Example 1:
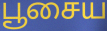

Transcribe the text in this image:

பூசைய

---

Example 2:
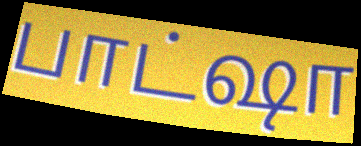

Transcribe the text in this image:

பாட்ஷா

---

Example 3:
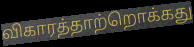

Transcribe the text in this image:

விகாரத்தாற்றொக்கது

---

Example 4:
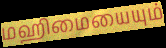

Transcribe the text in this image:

மஹிமையையும்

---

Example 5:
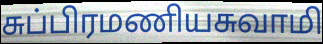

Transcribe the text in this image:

சுப்பிரமணியசுவாமி